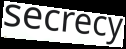
secrecy